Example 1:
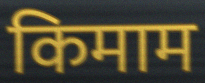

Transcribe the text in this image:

किमाम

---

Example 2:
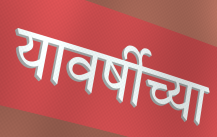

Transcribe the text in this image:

यावर्षीच्या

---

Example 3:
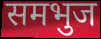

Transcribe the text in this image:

समभुज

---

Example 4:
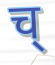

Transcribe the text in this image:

च्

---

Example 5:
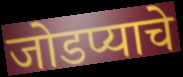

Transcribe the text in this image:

जोडप्याचे